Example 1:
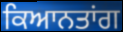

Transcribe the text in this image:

ਕਿਆਨਤਾਂਗ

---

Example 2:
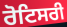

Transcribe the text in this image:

ਰੋਟਿਸਰੀ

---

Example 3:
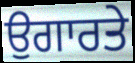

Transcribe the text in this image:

ਉਗਾਰਤੇ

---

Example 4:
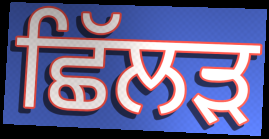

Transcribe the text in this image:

ਛਿੱਲੜ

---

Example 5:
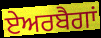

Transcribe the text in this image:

ਏਅਰਬੈਗਾਂ